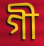
গী